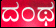
ದಂಥ